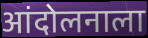
आंदोलनाला